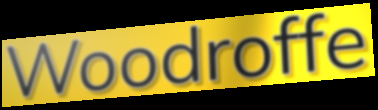
Woodroffe